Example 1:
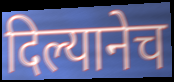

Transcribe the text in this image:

दिल्यानेच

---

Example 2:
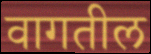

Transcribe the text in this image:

वागतील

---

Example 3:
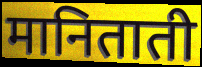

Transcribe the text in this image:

मानिताती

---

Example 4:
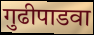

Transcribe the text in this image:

गुढीपाडवा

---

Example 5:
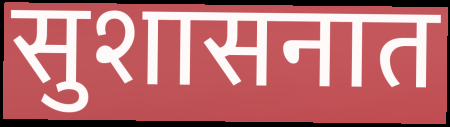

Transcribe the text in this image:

सुशासनात